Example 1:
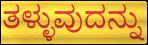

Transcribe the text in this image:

ತಳ್ಳುವುದನ್ನು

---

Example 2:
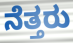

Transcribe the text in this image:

ನೆತ್ತರು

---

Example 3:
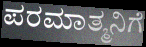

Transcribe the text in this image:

ಪರಮಾತ್ಮನಿಗೆ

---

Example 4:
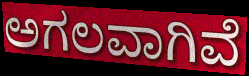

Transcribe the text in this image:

ಅಗಲವಾಗಿವೆ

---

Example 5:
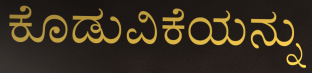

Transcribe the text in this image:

ಕೊಡುವಿಕೆಯನ್ನು